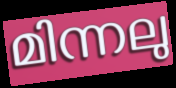
മിന്നലു